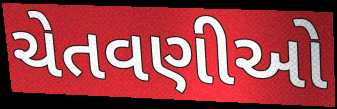
ચેતવણીઓ